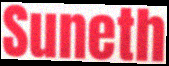
Suneth